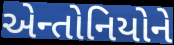
એન્તોનિયોને